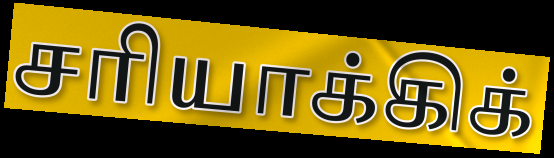
சரியாக்கிக்